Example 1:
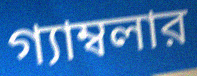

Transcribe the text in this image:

গ্যাম্বলার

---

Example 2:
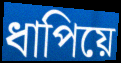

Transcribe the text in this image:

ধাপিয়ে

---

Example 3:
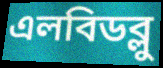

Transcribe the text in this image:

এলবিডব্লু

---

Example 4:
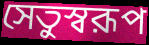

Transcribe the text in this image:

সেতুস্বরূপ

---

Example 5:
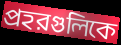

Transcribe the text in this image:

প্রহরগুলিকে